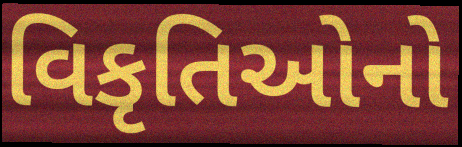
વિકૃતિઓનો